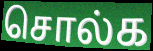
சொல்க